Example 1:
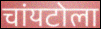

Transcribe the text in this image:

चांयटोला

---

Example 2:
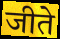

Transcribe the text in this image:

जीते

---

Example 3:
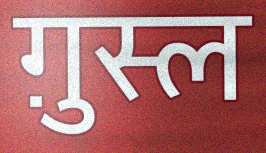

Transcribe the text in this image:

ग़ुस्ल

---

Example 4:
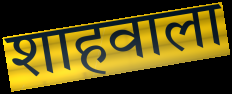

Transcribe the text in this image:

शाहवाला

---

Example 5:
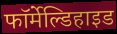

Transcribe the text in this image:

फॉर्मेल्डिहाइड